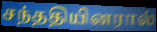
சந்ததியினரால்